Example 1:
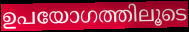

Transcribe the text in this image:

ഉപയോഗത്തിലൂടെ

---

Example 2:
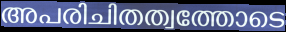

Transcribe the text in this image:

അപരിചിതത്വത്തോടെ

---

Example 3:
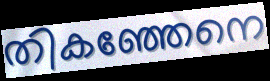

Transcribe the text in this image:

തികഞ്ഞേനെ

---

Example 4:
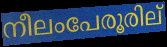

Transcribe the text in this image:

നീലംപേരൂരില്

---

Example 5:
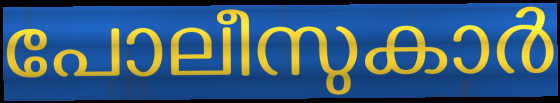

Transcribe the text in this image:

പോലീസുകാർ